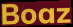
Boaz